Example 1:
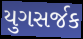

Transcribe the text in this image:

યુગસર્જક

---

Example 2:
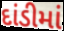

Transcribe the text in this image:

દાંડીમાં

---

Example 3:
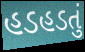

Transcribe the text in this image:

હડહડતું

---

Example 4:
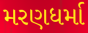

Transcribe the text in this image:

મરણધર્મા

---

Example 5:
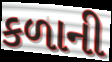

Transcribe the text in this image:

કળાની